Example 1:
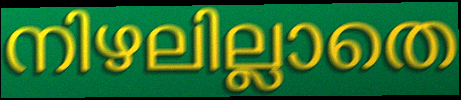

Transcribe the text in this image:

നിഴലില്ലാതെ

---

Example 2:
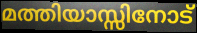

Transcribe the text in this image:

മത്തിയാസ്സിനോട്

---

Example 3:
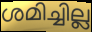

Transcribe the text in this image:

ശമിച്ചില്ല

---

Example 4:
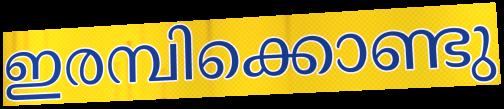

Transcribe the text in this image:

ഇരമ്പിക്കൊണ്ടു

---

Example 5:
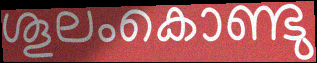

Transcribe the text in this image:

ശൂലംകൊണ്ടു